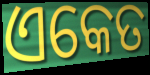
ଏକେତ